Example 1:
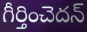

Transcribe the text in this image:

గీర్తించెదన్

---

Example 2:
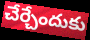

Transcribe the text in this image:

చేర్చేందుకు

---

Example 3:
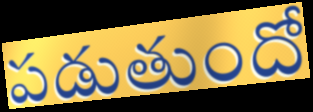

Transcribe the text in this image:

పడుతుందో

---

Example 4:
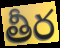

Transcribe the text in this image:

తీర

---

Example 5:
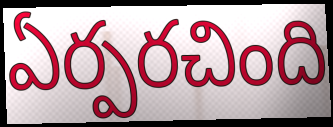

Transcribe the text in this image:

ఏర్పరచింది